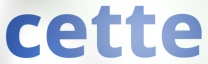
cette